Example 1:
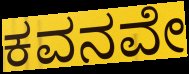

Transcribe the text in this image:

ಕವನವೇ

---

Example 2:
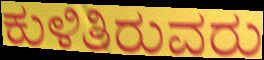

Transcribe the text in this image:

ಕುಳಿತಿರುವರು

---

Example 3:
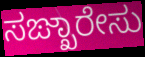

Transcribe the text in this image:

ಸಙ್ಖಾರೇಸು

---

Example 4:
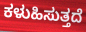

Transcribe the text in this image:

ಕಳುಹಿಸುತ್ತದೆ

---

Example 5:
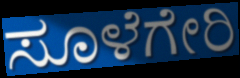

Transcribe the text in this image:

ಸೂಳೆಗೇರಿ